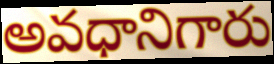
అవధానిగారు